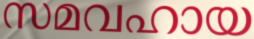
സമവഹായ